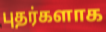
புதர்களாக